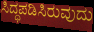
ಸಿದ್ಧಪಡಿಸಿರುವುದು